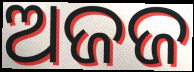
ଅଜଜ